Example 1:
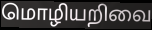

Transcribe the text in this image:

மொழியறிவை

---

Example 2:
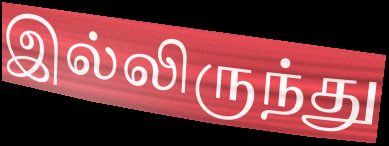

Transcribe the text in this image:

இல்லிருந்து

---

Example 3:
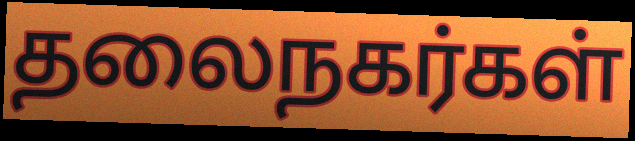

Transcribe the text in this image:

தலைநகர்கள்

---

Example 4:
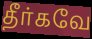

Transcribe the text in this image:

தீர்கவே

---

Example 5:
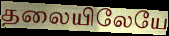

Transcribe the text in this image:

தலையிலேயே